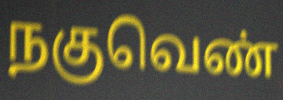
நகுவெண்